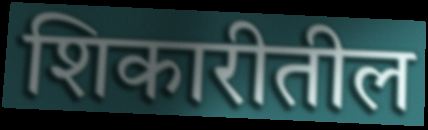
शिकारीतील